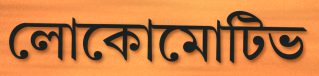
লোকোমোটিভ